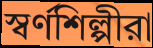
স্বর্ণশিল্পীরা